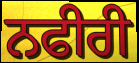
ਨਫੀਰੀ